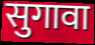
सुगावा